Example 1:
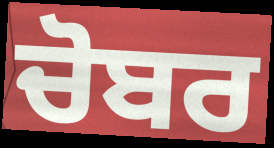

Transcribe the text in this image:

ਚੋਬਰ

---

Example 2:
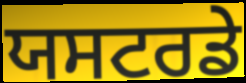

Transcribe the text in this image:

ਯਸਟਰਡੇ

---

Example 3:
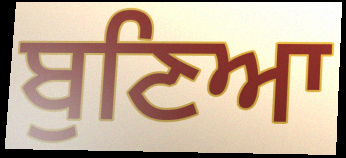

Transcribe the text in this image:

ਬੁਣਿਆ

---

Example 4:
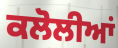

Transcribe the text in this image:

ਕਲੋਲੀਆਂ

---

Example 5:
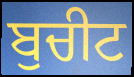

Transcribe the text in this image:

ਬੁਚੀਟ